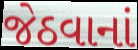
જેઠવાનાં